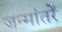
जन्मांतरें